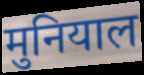
मुनियाल